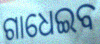
ଗାଧେଇବ